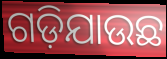
ଗଡ଼ିଯାଉଛ